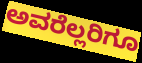
ಅವರೆಲ್ಲರಿಗೂ